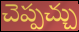
చెప్పచ్చు